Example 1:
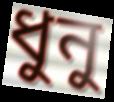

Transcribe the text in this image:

ধুনু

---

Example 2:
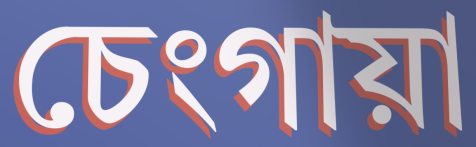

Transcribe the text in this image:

চেংগায়া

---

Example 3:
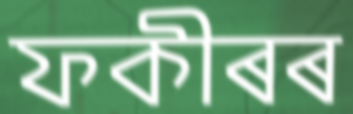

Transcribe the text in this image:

ফকীৰৰ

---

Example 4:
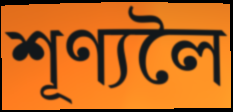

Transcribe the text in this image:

শূণ্যলৈ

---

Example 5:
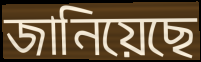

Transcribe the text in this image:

জানিয়েছে